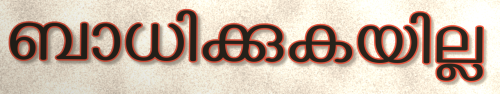
ബാധിക്കുകയില്ല